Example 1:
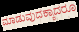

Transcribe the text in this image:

ಮಾಡುವುದಕ್ಕಾದರೂ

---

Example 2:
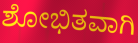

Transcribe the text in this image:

ಶೋಭಿತವಾಗಿ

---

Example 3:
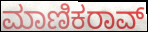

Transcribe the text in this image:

ಮಾಣಿಕರಾವ್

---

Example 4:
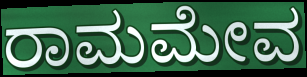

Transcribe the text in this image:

ರಾಮಮೇವ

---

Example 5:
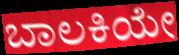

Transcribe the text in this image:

ಬಾಲಕಿಯೇ